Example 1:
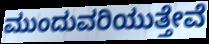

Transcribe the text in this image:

ಮುಂದುವರಿಯುತ್ತೇವೆ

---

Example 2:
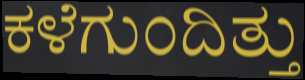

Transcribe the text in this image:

ಕಳೆಗುಂದಿತ್ತು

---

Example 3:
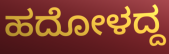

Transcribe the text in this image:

ಹದೋಳದ್ದ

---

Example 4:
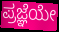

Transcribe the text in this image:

ಪ್ರಜ್ಞೆಯೇ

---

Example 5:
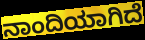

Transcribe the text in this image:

ನಾಂದಿಯಾಗಿದೆ